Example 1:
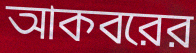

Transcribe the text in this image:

আকবরের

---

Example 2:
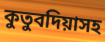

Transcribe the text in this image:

কুতুবদিয়াসহ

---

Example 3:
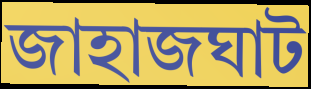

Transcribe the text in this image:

জাহাজঘাট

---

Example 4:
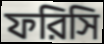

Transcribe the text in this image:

ফরিসি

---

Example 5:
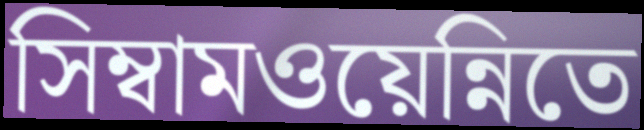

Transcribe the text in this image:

সিম্বামওয়েন্নিতে